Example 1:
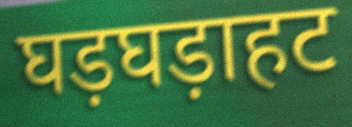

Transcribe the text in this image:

घड़घड़ाहट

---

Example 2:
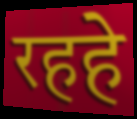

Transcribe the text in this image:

रहहे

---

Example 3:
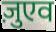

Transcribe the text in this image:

ज़ुएव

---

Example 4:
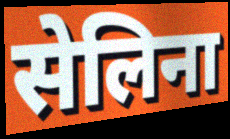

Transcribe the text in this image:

सेलिना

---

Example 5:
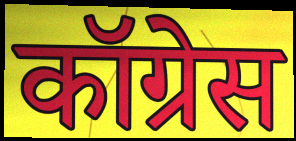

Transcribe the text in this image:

कॉग्रेस